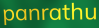
panrathu